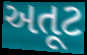
અતૂટ